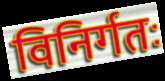
विनिर्गतः